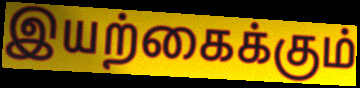
இயற்கைக்கும்